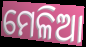
ମେଳିଆ